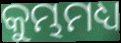
କୁମ୍ଭମଧ୍ୟ